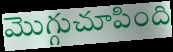
మొగ్గుచూపింది